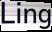
Ling